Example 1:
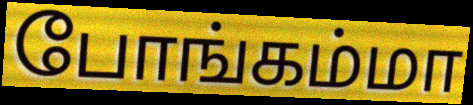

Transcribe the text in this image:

போங்கம்மா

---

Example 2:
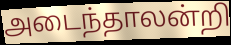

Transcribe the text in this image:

அடைந்தாலன்றி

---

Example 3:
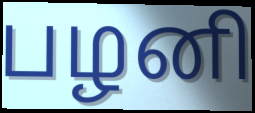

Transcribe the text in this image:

பழனி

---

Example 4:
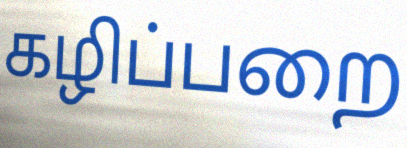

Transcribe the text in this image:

கழிப்பறை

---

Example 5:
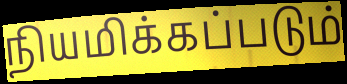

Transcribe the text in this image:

நியமிக்கப்படும்